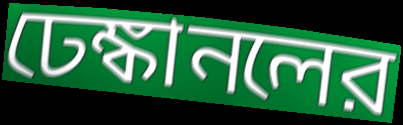
ঢেঙ্কানলের